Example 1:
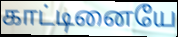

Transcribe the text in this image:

காட்டினையே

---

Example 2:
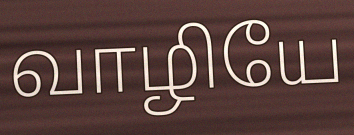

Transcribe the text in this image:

வாழியே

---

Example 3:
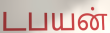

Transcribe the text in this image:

டபயன்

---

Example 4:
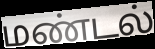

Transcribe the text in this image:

மண்டல்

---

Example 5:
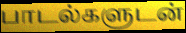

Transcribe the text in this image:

பாடல்களுடன்